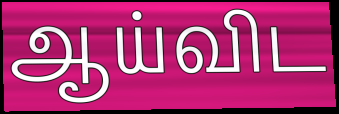
ஆய்விட